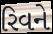
રિવને